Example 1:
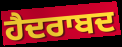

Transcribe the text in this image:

ਹੈਦਰਾਬਦ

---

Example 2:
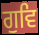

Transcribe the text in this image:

ਗੁਵਿ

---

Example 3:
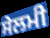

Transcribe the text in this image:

ਸੇਲਮੀ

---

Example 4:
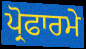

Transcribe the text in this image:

ਪ੍ਰੋਫਾਰਮੇ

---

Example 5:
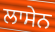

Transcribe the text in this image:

ਲਾਸੇਨ